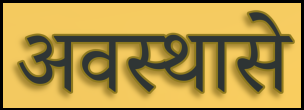
अवस्थासे